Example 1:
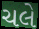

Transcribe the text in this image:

ચલે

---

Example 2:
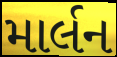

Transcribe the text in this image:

માર્લન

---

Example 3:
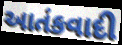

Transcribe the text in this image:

આતંકવાદી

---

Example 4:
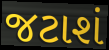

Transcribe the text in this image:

જટાશં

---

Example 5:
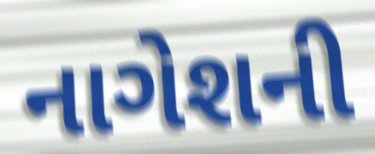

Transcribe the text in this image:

નાગેશની